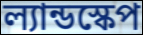
ল্যান্ডস্কেপ